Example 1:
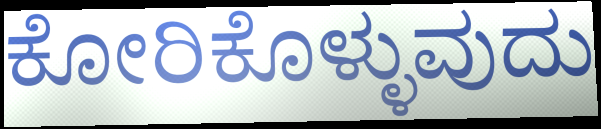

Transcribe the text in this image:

ಕೋರಿಕೊಳ್ಳುವುದು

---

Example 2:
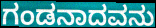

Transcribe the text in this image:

ಗಂಡನಾದವನು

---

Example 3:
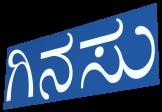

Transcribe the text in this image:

ಗಿನಸು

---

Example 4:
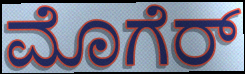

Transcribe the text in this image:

ಮೊಗೆರ್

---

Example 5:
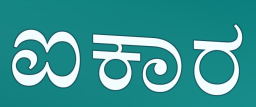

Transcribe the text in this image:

ಐಕಾರ